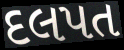
દલપત